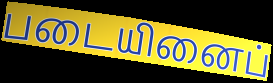
படையினைப்